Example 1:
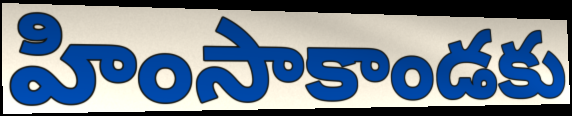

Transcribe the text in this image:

హింసాకాండకు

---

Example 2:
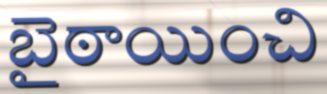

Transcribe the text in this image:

బైఠాయించి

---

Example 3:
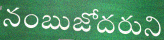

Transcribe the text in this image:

నంబుజోదరుని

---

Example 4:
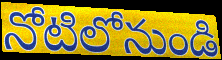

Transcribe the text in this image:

నోటిలోనుండి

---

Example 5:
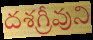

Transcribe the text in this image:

దశగ్రీవుని